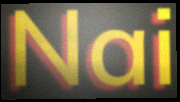
Nai